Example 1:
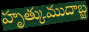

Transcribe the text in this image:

హృత్కుముదాబ్జ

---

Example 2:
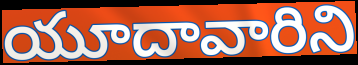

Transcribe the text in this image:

యూదావారిని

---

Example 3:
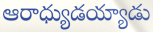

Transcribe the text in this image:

ఆరాధ్యుడయ్యాడు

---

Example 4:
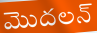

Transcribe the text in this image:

మొదలన్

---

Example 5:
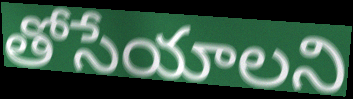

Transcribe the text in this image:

తోసేయాలని